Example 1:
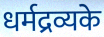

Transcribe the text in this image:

धर्मद्रव्यके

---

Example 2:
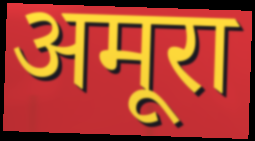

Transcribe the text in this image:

अमूरा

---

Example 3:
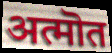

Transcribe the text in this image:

अत्मॊत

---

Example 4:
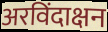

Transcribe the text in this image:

अरविंदाक्षन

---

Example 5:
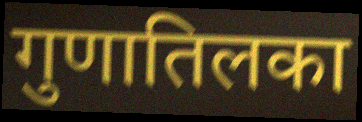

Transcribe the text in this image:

गुणातिलका